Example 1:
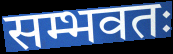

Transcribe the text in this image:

सम्भवतः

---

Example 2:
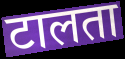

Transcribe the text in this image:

टालता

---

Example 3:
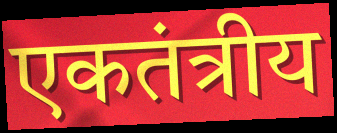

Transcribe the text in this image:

एकतंत्रीय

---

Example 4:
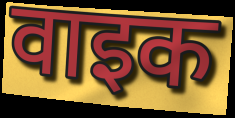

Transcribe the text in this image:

वाइक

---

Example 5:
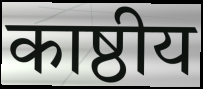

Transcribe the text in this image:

काष्ठीय